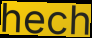
hech